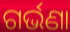
ଗର୍ଭଣା